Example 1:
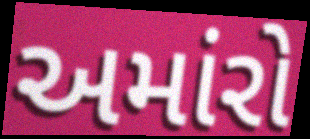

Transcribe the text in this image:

અમાંરો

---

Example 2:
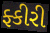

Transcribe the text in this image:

ફ્કીરી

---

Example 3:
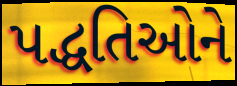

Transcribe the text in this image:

પદ્ધતિઓને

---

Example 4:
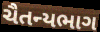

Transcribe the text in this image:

ચૈતન્યભાગ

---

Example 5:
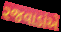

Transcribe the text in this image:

રજવાડાંએ